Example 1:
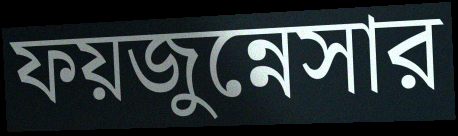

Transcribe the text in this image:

ফয়জুন্নেসার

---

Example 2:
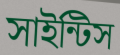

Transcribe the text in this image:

সাইন্টিস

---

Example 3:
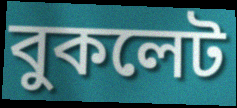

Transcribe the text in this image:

বুকলেট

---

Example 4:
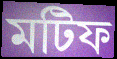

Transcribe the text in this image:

মটিফ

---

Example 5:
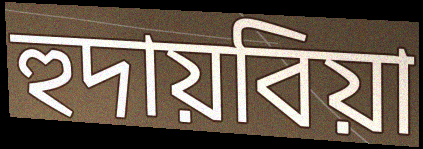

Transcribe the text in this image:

হুদায়বিয়া